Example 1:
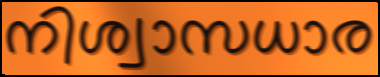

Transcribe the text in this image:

നിശ്വാസധാര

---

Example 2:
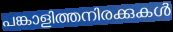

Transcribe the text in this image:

പങ്കാളിത്തനിരക്കുകൾ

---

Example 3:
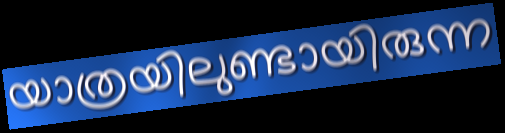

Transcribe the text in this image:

യാത്രയിലുണ്ടായിരുന്ന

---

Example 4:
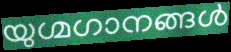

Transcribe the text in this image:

യുഗ്മഗാനങ്ങൾ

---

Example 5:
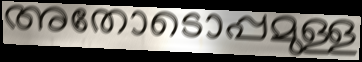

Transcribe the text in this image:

അതോടൊപ്പമുള്ള